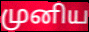
முனிய